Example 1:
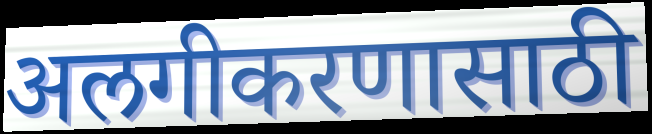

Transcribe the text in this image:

अलगीकरणासाठी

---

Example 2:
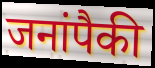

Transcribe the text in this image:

जनांपैकी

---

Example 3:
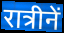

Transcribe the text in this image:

रात्रीनें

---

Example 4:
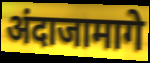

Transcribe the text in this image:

अंदाजामागे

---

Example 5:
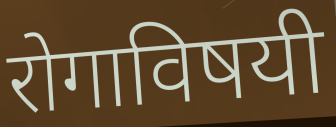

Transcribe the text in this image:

रोगाविषयी